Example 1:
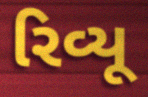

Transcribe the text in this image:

રિવ્યૂ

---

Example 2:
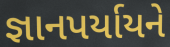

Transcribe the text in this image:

જ્ઞાનપર્યાયને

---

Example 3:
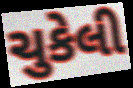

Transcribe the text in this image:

ચુકેલી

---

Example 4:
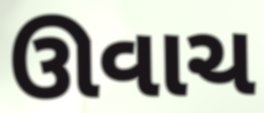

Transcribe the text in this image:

ઊવાચ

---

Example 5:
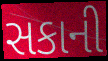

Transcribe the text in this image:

સકાની